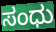
ಸಂಧು